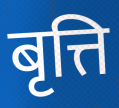
बृत्ति